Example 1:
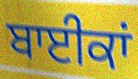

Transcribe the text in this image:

ਬਾਈਕਾਂ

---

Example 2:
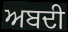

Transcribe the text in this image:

ਅਬਦੀ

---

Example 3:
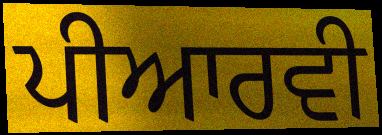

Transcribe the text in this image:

ਪੀਆਰਵੀ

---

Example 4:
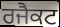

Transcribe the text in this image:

ਰਜੈਕਟ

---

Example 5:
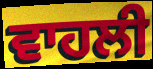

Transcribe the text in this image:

ਵਾਹਲੀ